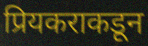
प्रियकराकडून